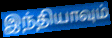
இந்தியாவும்